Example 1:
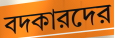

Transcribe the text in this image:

বদকারদের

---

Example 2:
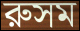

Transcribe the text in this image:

রুসম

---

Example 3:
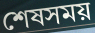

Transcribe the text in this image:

শেষসময়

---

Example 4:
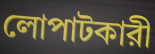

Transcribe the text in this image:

লোপাটকারী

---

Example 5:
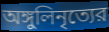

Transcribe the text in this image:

অঙ্গুলিনৃত্যের